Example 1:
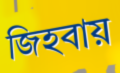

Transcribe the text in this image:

জিহবায়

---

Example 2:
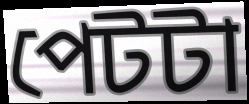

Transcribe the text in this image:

পেটটা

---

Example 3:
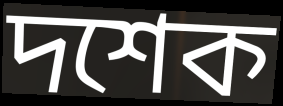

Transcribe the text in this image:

দশেক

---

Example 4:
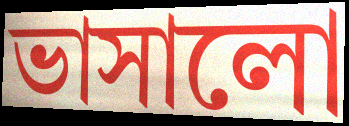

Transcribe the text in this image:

ভাসালো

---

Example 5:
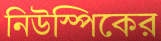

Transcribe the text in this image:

নিউস্পিকের